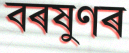
বৰষুণৰ